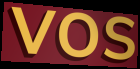
vos